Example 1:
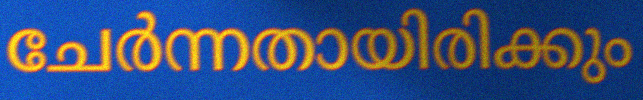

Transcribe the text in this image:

ചേർന്നതായിരിക്കും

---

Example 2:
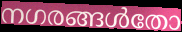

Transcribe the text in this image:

നഗരങ്ങൾതോ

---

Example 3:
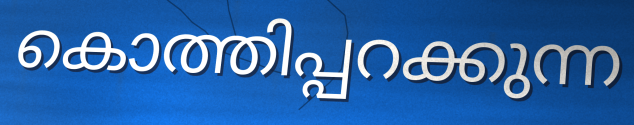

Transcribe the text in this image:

കൊത്തിപ്പറക്കുന്ന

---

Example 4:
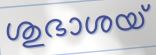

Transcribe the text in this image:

ശുഭാശയ്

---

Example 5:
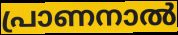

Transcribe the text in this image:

പ്രാണനാൽ